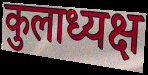
कुलाध्यक्ष